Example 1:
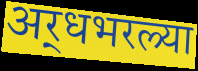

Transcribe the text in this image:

अर्धभरल्या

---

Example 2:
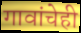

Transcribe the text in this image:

गावांचेही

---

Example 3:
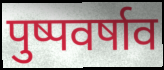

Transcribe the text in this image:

पुष्पवर्षाव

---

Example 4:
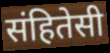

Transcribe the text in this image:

संहितेसी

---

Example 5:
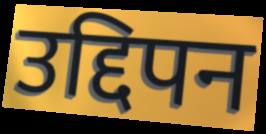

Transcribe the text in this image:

उद्दिपन